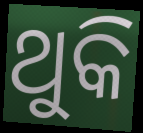
ଥୁକି